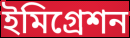
ইমিগ্রেশন